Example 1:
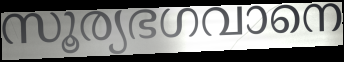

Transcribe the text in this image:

സൂര്യഭഗവാനെ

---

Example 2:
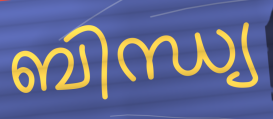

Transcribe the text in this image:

ബിന്ധ്യ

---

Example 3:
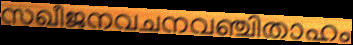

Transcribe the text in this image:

സഖീജനവചനവഞ്ചിതാഹം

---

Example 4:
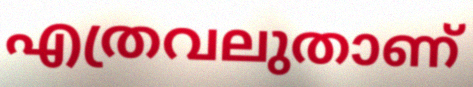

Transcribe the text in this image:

എത്രവലുതാണ്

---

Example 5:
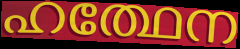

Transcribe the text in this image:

ഹത്ഥേന